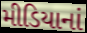
મીડિયાનાં